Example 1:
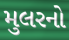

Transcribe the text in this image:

મુલરનો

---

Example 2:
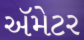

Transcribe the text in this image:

ઍમેટર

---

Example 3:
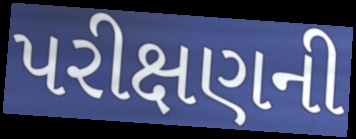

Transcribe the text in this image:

પરીક્ષણની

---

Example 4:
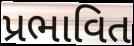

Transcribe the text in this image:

પ્રભાવિત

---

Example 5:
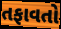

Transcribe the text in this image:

તફાવતો